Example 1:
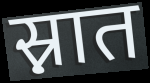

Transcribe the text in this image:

स्नात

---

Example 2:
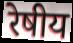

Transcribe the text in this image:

रेषीय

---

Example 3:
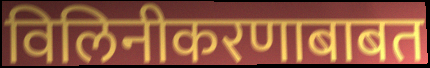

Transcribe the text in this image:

विलिनीकरणाबाबत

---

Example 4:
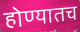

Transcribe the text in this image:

होण्यातच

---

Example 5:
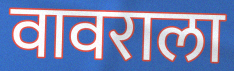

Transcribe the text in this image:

वावराला